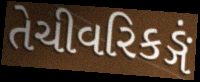
તેચીવરિકઙ્ગં